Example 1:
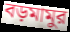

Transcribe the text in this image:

বড়মামুর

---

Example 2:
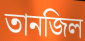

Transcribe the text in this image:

তানজিল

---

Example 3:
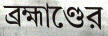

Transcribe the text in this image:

ব্রহ্মাণ্ডের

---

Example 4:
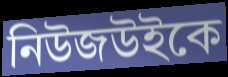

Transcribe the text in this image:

নিউজউইকে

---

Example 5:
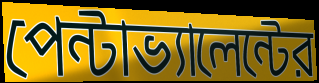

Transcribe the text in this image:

পেন্টাভ্যালেন্টের